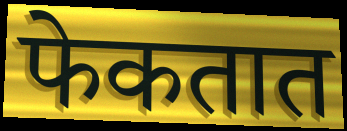
फेकतात